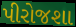
પીરોજશા